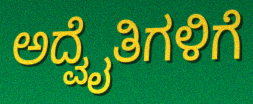
ಅದ್ವೈತಿಗಳಿಗೆ